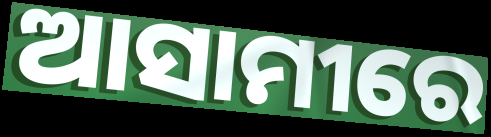
ଆସାମୀରେ